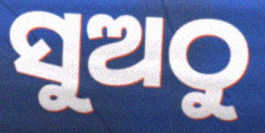
ସୁଅଠୁ